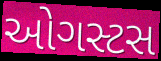
ઓગસ્ટસ